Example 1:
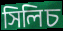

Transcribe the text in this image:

সিলিচ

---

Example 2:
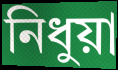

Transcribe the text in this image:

নিধুয়া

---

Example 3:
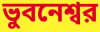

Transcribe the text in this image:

ভুবনেশ্বর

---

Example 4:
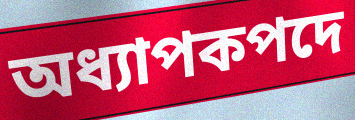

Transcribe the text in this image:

অধ্যাপকপদে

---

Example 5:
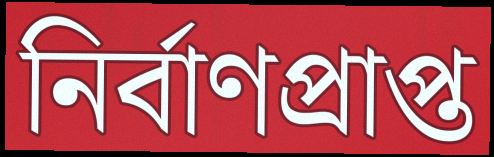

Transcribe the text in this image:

নির্বাণপ্রাপ্ত